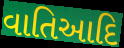
વાતિઆદિ